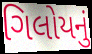
ગિલોયનું